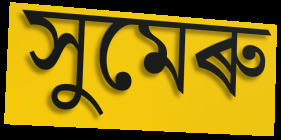
সুমেৰু